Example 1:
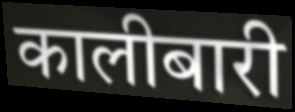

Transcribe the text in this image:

कालीबारी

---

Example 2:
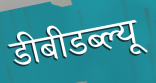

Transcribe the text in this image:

डीबीडब्ल्यू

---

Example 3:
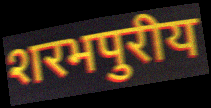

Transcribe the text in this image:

शरभपुरीय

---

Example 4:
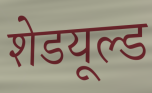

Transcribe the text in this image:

शेडयूल्ड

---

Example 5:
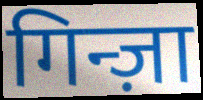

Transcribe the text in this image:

गिन्ज़ा